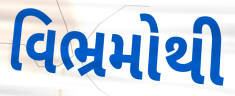
વિભ્રમોથી